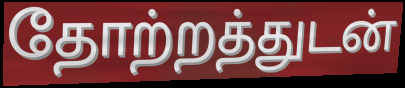
தோற்றத்துடன்